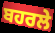
ਬਹਰਲੇ